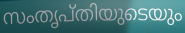
സംതൃപ്തിയുടെയും